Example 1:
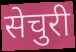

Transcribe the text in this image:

सेचुरी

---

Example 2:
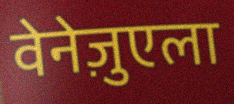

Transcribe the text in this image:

वेनेज़ुएला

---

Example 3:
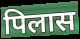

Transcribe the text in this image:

पिलास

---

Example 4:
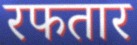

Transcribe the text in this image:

रफतार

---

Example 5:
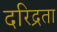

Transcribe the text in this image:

दरिद्रता